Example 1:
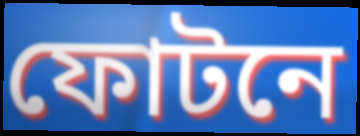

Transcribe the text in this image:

ফোটনে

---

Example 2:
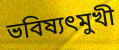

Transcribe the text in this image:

ভবিষ্যৎমুখী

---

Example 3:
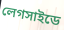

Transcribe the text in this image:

লেগসাইডে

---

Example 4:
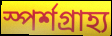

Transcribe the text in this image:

স্পর্শগ্রাহ্য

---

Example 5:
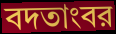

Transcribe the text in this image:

বদতাংবর